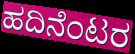
ಹದಿನೆಂಟರ